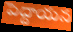
పెద్దాయన